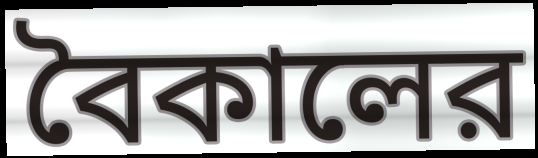
বৈকালের